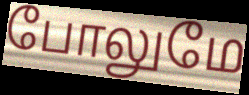
போலுமே